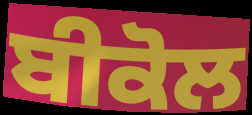
ਬੀਕੋਲ